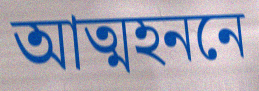
আত্মহননে